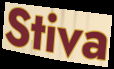
Stiva